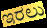
ಇರಲು